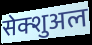
सेक्शुअल